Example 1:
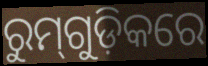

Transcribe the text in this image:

ରୁମ୍‌ଗୁଡ଼ିକରେ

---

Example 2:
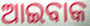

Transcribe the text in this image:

ଆଇବାକ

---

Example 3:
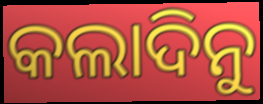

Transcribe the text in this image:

କଲାଦିନୁ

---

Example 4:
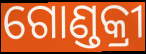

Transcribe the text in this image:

ଗୋଣ୍ଡକ୍ରୀ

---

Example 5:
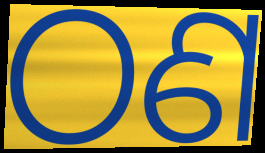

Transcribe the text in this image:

ଠଣ